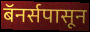
बॅनर्सपासून